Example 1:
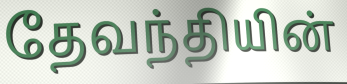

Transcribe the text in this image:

தேவந்தியின்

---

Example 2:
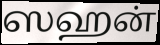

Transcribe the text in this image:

ஸஹன்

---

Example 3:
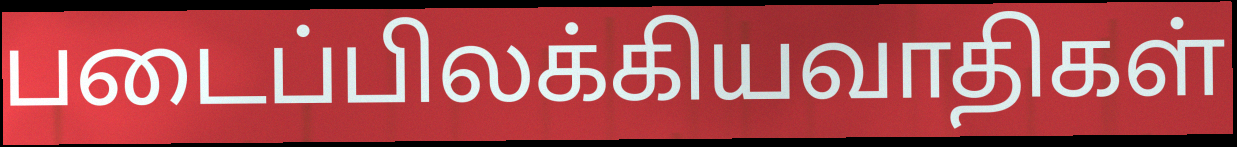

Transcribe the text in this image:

படைப்பிலக்கியவாதிகள்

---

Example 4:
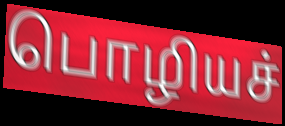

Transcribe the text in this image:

பொழியச்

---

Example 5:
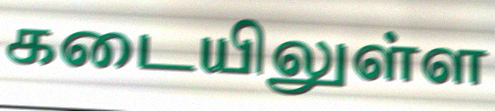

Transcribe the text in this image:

கடையிலுள்ள